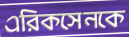
এরিকসেনকে